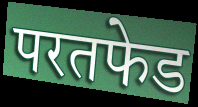
परतफेड